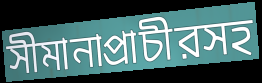
সীমানাপ্রাচীরসহ